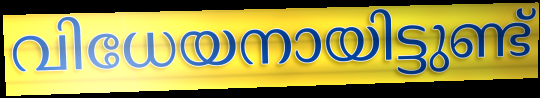
വിധേയനായിട്ടുണ്ട്